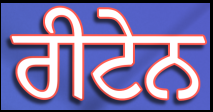
ਰੀਟੇਨ